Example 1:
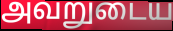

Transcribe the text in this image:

அவறுடைய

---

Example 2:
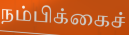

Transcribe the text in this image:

நம்பிக்கைச்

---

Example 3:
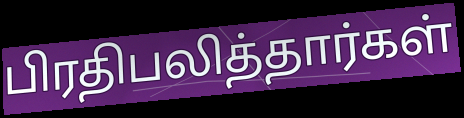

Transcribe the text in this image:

பிரதிபலித்தார்கள்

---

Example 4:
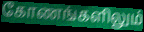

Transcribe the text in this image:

கோணங்களிலும்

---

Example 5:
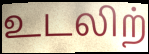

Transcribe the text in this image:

உடலிற்